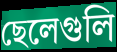
ছেলেগুলি